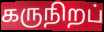
கருநிறப்